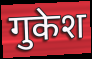
गुकेश